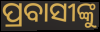
ପ୍ରବାସୀଙ୍କୁ